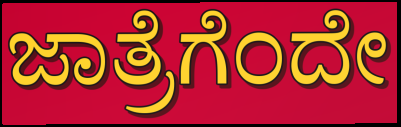
ಜಾತ್ರೆಗೆಂದೇ